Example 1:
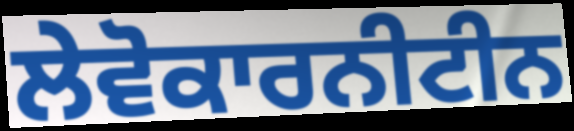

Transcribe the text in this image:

ਲੇਵੋਕਾਰਨੀਟੀਨ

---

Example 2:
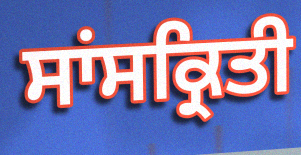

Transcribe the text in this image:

ਸਾਂਸਕ੍ਰਿਤੀ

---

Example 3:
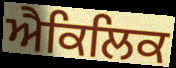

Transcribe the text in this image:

ਐਕਿਲਿਕ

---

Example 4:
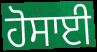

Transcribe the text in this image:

ਹੋਸਾਈ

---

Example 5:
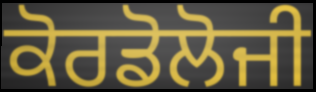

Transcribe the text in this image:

ਕੋਰਡੋਲੋਜੀ